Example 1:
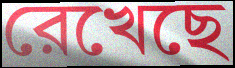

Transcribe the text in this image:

রেখেছে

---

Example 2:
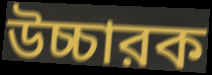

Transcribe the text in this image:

উচ্চারক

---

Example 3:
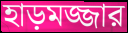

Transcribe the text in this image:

হাড়মজ্জার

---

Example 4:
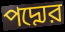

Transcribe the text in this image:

পদ্মের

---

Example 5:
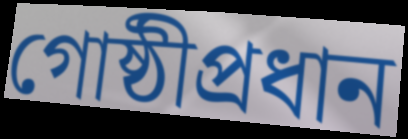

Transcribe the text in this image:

গোষ্ঠীপ্রধান